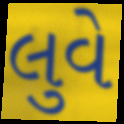
લુવે